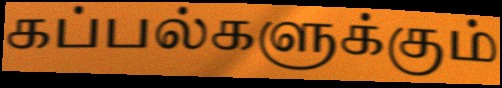
கப்பல்களுக்கும்